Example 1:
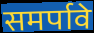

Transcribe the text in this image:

समर्पावे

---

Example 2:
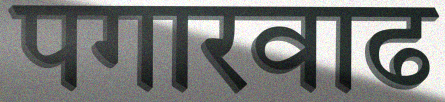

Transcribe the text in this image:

पगारवाढ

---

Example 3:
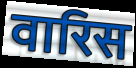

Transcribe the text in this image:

वारिस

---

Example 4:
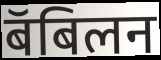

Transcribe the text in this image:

बॅबिलन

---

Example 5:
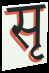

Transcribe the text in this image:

सृ